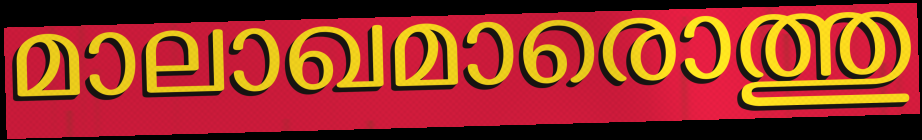
മാലാഖമാരൊത്തു